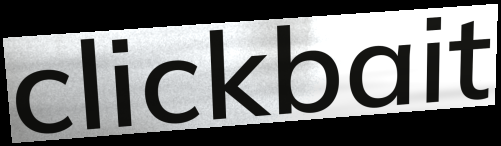
clickbait